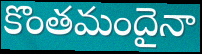
కొంతమందైనా